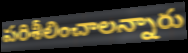
పరిశీలించాలన్నారు